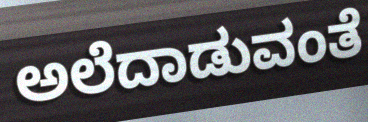
ಅಲೆದಾಡುವಂತೆ